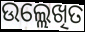
ଉଲ୍ଲେଖିତ